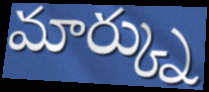
మార్క్ను